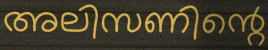
അലിസണിന്റെ